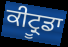
ਕੀਟ੍ਰੂਡਾ